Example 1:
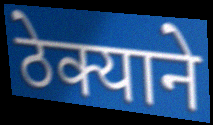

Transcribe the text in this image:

ठेक्याने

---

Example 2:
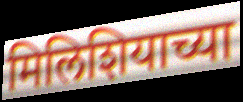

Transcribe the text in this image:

मिलिशियाच्या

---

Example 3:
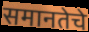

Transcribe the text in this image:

समानतेचे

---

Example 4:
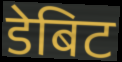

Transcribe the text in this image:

डेबिट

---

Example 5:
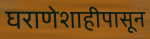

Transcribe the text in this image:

घराणेशाहीपासून